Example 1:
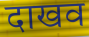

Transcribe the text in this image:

दाखव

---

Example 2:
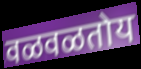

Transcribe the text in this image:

वळवळतोय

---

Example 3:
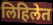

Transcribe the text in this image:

लिहिलेत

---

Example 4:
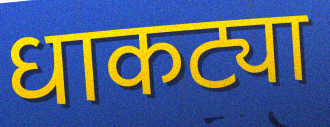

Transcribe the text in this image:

धाकट्या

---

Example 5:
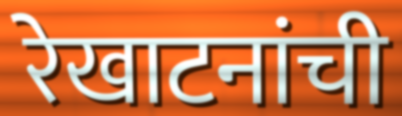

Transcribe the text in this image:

रेखाटनांची